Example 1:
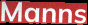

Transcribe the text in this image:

Manns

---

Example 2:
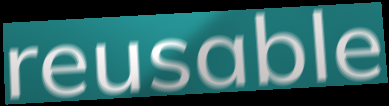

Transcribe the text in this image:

reusable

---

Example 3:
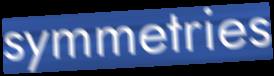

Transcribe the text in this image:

symmetries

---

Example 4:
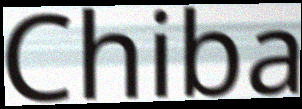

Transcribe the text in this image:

Chiba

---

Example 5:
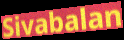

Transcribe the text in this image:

Sivabalan